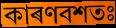
কাৰণবশতঃ